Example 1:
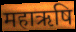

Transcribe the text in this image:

महाऋषि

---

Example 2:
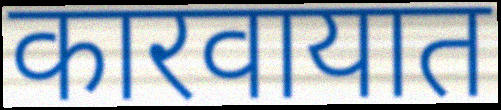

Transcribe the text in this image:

कारवायात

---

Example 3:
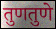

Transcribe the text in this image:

तुणतुणे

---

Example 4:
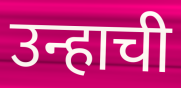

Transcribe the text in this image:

उन्हाची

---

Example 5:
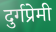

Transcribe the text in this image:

दुर्गप्रेमी